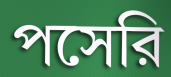
পসেরি